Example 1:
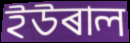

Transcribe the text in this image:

ইউৰাল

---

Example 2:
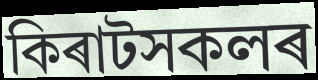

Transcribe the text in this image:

কিৰাটসকলৰ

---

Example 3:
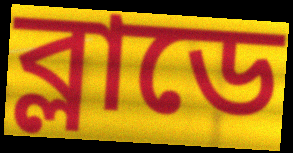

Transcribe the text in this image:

ব্লাডে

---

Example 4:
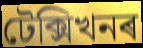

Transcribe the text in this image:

টেক্সিখনৰ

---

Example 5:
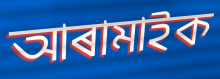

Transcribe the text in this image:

আৰামাইক